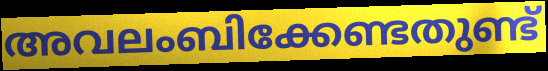
അവലംബിക്കേണ്ടതുണ്ട്